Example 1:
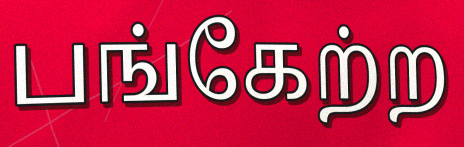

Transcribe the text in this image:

பங்கேற்ற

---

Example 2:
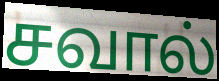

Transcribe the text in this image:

சவால்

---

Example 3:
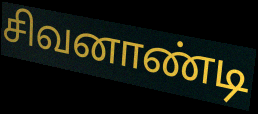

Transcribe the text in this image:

சிவனாண்டி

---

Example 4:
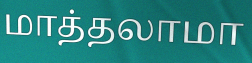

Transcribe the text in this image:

மாத்தலாமா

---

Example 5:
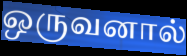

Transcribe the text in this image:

ஒருவனால்